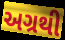
અગ્રથી